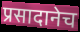
प्रसादानेच